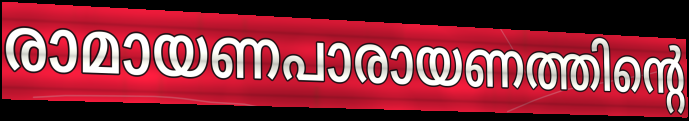
രാമായണപാരായണത്തിന്റെ